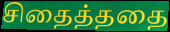
சிதைத்ததை